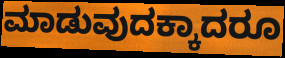
ಮಾಡುವುದಕ್ಕಾದರೂ